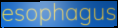
esophagus